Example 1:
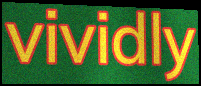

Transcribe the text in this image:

vividly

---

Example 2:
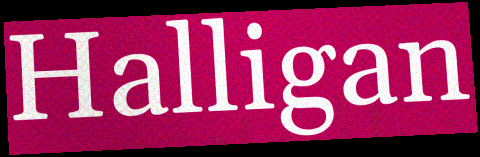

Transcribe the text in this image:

Halligan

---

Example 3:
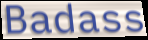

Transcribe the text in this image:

Badass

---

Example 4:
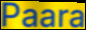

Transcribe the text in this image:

Paara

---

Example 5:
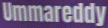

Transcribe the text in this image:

Ummareddy